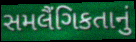
સમલૈંગિકતાનું